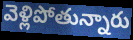
వెళ్లిపోతున్నారు